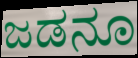
ಜಡನೂ